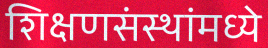
शिक्षणसंस्थांमध्ये